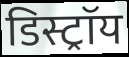
डिस्ट्रॉय